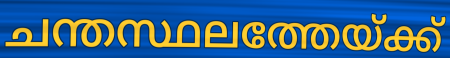
ചന്തസ്ഥലത്തേയ്ക്ക്